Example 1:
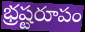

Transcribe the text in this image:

భ్రష్టరూపం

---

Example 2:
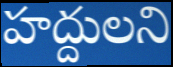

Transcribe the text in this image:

హద్దులని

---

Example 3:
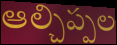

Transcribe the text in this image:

ఆల్చిప్పల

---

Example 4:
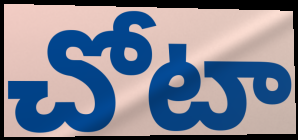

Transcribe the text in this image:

చోటా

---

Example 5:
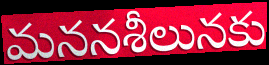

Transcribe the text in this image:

మననశీలునకు